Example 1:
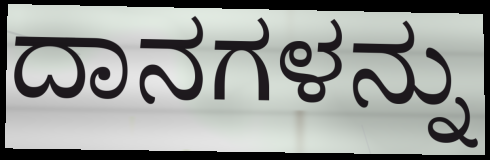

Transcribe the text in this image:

ದಾನಗಳನ್ನು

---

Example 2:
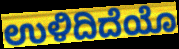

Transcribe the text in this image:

ಉಳಿದಿದೆಯೊ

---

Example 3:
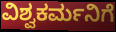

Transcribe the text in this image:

ವಿಶ್ವಕರ್ಮನಿಗೆ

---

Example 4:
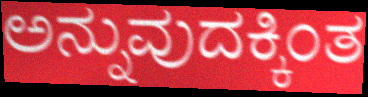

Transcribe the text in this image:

ಅನ್ನುವುದಕ್ಕಿಂತ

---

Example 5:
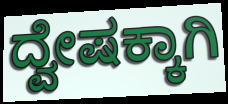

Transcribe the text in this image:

ದ್ವೇಷಕ್ಕಾಗಿ